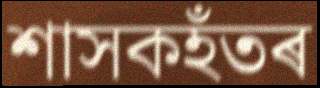
শাসকহঁতৰ